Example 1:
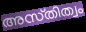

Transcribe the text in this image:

അസ്‌തിത്വം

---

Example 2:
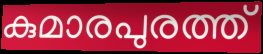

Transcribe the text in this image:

കുമാരപുരത്ത്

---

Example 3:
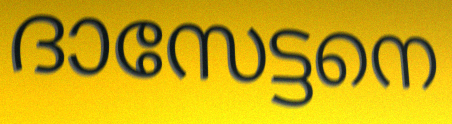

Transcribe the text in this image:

ദാസേട്ടനെ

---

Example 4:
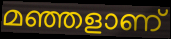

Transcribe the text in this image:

മഞ്ഞളാണ്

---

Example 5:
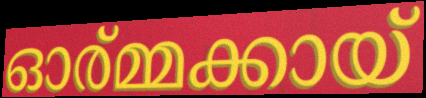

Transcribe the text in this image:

ഓര്മ്മക്കായ്